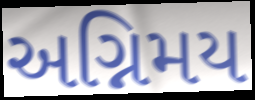
અગ્નિમય